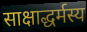
साक्षाद्धर्मस्य